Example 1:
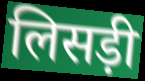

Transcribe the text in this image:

लिसड़ी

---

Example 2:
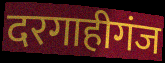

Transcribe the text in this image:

दरगाहीगंज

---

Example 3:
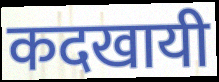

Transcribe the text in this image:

कदखायी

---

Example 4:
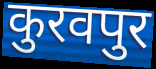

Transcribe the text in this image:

कुरवपुर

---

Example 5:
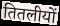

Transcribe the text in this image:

तितलीयों